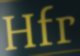
Hfr